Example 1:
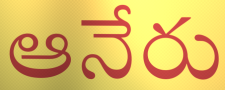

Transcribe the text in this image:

ఆనేరు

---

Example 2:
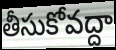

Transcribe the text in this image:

తీసుకోవద్దా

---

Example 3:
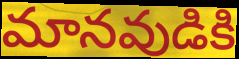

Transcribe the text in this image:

మానవుడికి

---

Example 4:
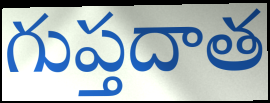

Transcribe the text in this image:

గుప్తదాత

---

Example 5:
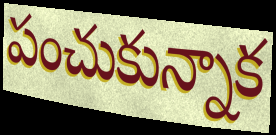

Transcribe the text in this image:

పంచుకున్నాక